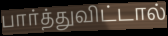
பார்த்துவிட்டால்